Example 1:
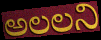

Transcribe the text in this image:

అలలని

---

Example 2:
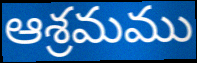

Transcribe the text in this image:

ఆశ్రమము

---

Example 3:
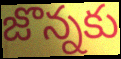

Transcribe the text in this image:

జొన్నకు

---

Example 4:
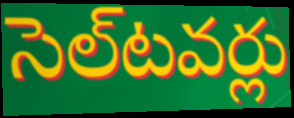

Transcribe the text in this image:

సెల్‌టవర్లు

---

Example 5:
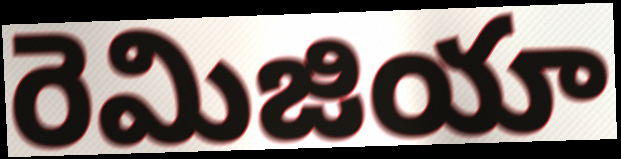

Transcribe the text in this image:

రెమిజియా